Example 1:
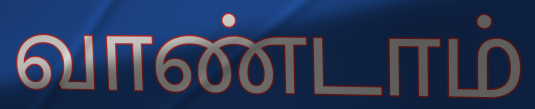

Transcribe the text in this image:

வாண்டாம்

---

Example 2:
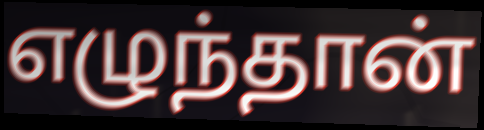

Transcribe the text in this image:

எழுந்தான்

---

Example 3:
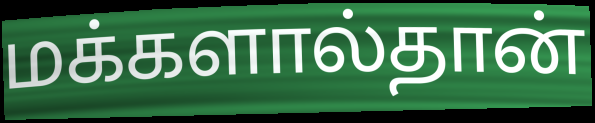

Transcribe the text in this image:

மக்களால்தான்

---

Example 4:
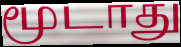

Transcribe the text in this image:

மூடாது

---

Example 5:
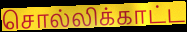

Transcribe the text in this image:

சொல்லிக்காட்ட